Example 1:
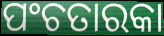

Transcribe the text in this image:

ପଂଚତାରକା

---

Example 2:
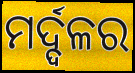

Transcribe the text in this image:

ମର୍ଦ୍ଦଳର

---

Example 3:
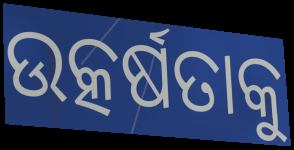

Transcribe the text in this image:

ଉତ୍କର୍ଷତାକୁ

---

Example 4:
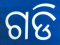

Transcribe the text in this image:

ଗଡି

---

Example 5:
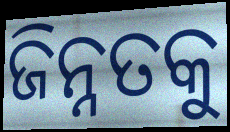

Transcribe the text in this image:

ଜିନ୍ନତକୁ